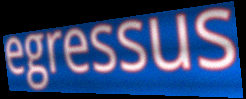
egressus